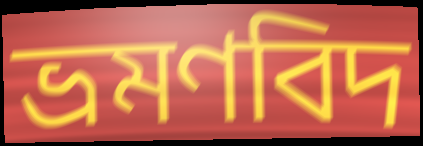
ভ্রমণবিদ